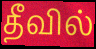
தீவில்